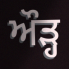
ਔੜ੍ਹ